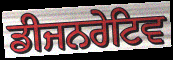
ਡੀਜਨਰੇਟਿਵ